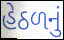
હેઠળનું